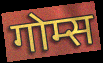
गोम्स